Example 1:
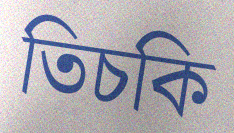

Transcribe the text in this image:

তিচকি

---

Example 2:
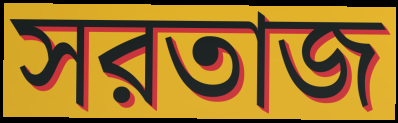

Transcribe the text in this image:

সরতাজ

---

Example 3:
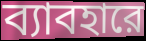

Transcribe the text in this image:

ব্যাবহারে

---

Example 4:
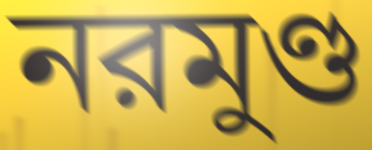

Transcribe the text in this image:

নরমুণ্ড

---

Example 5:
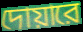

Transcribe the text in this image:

দোয়ারে